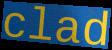
clad